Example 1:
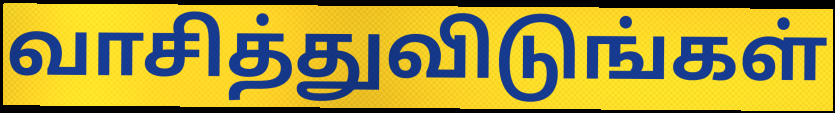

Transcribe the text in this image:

வாசித்துவிடுங்கள்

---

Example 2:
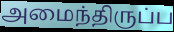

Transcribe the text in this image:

அமைந்திருப்ப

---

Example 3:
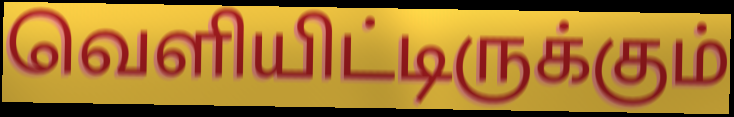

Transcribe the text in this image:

வெளியிட்டிருக்கும்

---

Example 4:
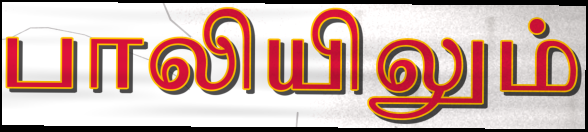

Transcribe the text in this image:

பாலியிலும்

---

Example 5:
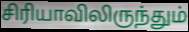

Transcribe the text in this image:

சிரியாவிலிருந்தும்